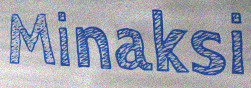
Minaksi